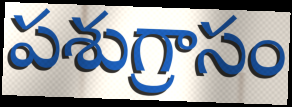
పశుగ్రాసం